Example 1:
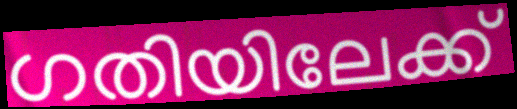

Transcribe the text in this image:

ഗതിയിലേക്ക്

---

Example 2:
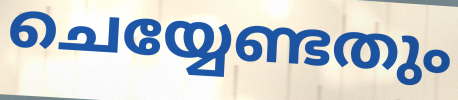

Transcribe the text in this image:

ചെയ്യേണ്ടതും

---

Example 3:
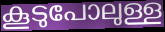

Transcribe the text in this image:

കൂടുപോലുള്ള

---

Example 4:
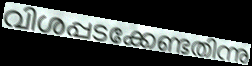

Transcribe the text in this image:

വിശപ്പടക്കേണ്ടതിന്നു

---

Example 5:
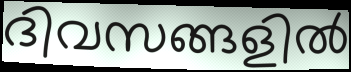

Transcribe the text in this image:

ദിവസങ്ങളിൽ